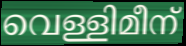
വെള്ളിമീന്